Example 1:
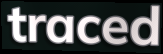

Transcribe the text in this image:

traced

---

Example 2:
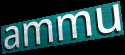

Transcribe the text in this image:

ammu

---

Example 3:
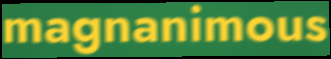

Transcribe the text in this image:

magnanimous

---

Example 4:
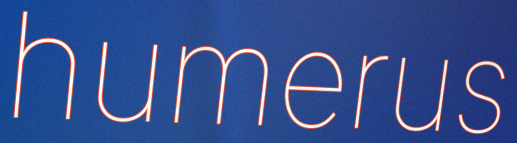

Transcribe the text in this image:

humerus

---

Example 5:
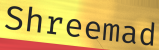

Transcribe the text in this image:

Shreemad